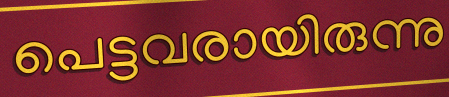
പെട്ടവരായിരുന്നു